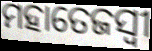
ମହାତେଜସ୍ୱୀ